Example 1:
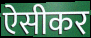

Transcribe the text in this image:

ऐसीकर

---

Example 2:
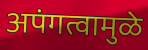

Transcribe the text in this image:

अपंगत्वामुळे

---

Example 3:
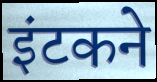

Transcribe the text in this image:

इंटकने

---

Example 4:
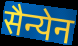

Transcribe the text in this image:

सैन्येन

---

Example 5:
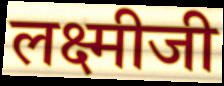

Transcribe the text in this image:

लक्ष्मीजी